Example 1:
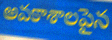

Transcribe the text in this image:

అవకాశాలపైన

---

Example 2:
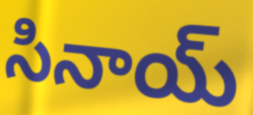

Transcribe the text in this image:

సినాయ్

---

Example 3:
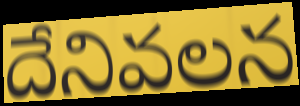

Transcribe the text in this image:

దేనివలన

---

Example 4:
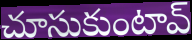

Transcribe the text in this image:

చూసుకుంటావ్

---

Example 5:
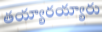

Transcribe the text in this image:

తయ్యారయ్యారు